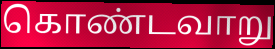
கொண்டவாறு